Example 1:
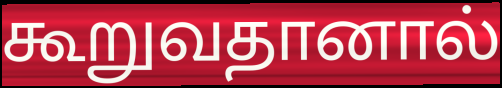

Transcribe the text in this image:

கூறுவதானால்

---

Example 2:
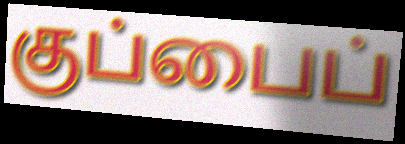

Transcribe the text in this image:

குப்பைப்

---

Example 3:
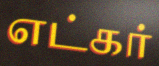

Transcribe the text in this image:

எட்கர்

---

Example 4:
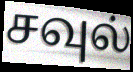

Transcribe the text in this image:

சவுல்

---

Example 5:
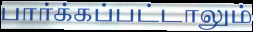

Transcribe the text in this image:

பார்க்கப்பட்டாலும்